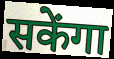
सकेंगा